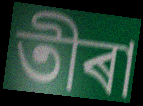
তীৰা